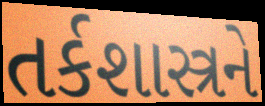
તર્કશાસ્ત્રને